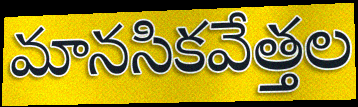
మానసికవేత్తల